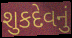
શુકદેવનું